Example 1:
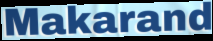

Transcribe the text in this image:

Makarand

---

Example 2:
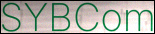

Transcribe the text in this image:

SYBCom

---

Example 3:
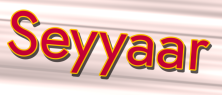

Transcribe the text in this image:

Seyyaar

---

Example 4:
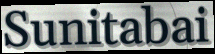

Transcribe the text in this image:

Sunitabai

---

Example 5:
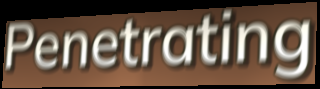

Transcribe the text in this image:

Penetrating